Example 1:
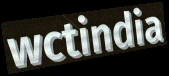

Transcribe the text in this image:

wctindia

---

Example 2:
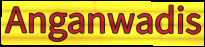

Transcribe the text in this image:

Anganwadis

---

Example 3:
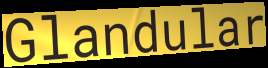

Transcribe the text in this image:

Glandular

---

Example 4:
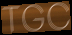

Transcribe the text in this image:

TGC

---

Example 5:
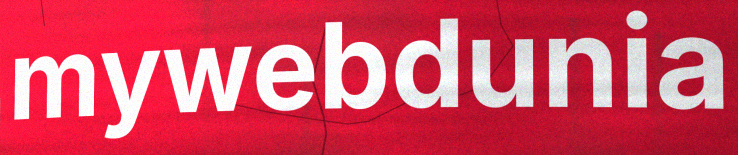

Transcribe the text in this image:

mywebdunia